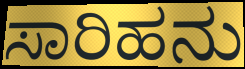
ಸಾರಿಹನು